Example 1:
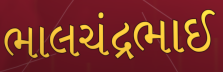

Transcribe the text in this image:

ભાલચંદ્રભાઈ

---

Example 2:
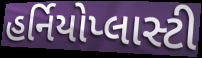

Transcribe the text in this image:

હર્નિયોપ્લાસ્ટી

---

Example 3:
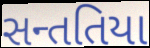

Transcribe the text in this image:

સન્તતિયા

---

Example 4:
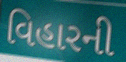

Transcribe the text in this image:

વિહારની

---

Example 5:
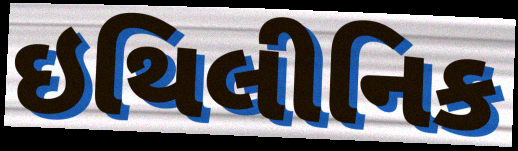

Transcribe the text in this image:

ઇથિલીનિક